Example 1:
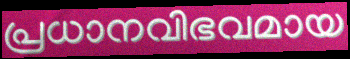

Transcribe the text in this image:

പ്രധാനവിഭവമായ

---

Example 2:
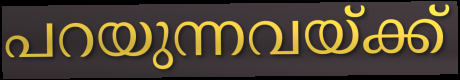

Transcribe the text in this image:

പറയുന്നവയ്ക്ക്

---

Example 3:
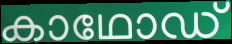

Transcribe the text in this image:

കാഥോഡ്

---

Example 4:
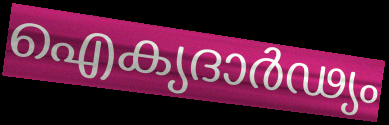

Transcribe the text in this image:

ഐക്യദാർഢ്യം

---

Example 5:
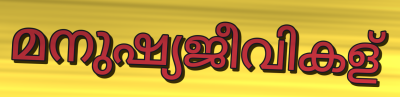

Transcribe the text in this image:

മനുഷ്യജീവികള്